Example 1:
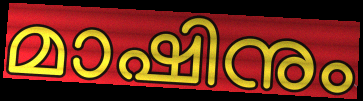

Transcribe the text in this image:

മാഷിനും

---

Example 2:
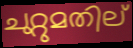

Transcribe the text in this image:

ചുറ്റുമതില്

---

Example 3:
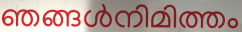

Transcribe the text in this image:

ഞങ്ങൾനിമിത്തം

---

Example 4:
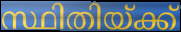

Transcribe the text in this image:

സ്ഥിതിയ്ക്ക്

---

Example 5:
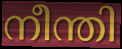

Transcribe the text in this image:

നീന്തി